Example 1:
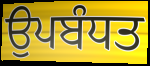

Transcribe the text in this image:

ਉਪਬੰਧਤ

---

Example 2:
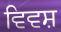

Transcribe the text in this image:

ਵਿਵਸ਼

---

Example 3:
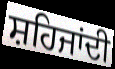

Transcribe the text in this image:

ਸ਼ਹਿਜਾਂਦੀ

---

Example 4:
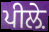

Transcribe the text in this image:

ਪੀਲ਼ੇ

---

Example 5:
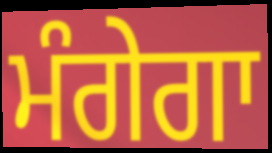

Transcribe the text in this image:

ਮੰਗੇਗਾ